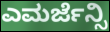
ಎಮರ್ಜೆನ್ಸಿ